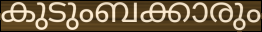
കുടുംബക്കാരും